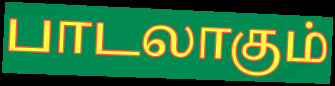
பாடலாகும்